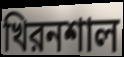
খিরনশাল